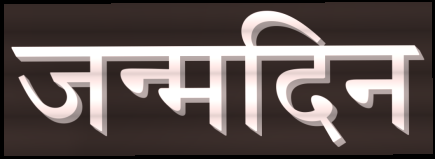
जन्मदिन